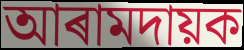
আৰামদায়ক